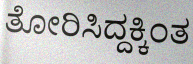
ತೋರಿಸಿದ್ದಕ್ಕಿಂತ